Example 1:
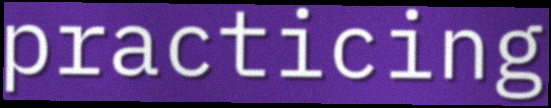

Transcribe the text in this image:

practicing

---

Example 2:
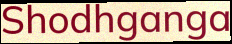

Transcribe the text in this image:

Shodhganga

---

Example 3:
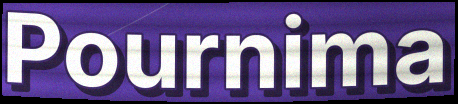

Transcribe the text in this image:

Pournima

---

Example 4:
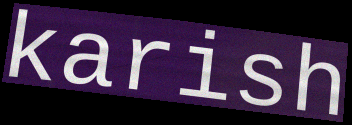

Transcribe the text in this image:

karish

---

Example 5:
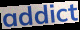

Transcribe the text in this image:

addict